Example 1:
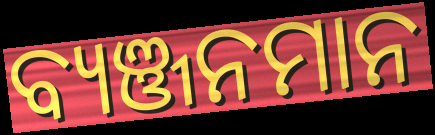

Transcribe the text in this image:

ବ୍ୟଞ୍ଜନମାନ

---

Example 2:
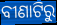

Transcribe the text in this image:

ବୀଣାଟିରୁ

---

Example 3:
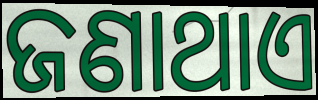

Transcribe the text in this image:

ଜଣାଥାଏ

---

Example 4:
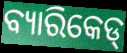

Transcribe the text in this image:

ବ୍ୟାରିକେଡ୍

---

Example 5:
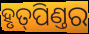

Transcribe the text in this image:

ହୃତ୍‌ପିଣ୍ତର